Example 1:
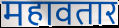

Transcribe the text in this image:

महावतार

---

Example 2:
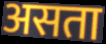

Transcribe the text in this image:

असता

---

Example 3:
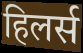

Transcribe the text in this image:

हिलर्स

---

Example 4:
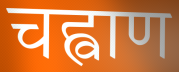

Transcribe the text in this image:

चह्वाण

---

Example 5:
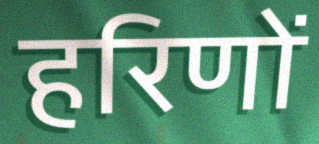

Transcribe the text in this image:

हरिणों